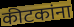
कीटकांना